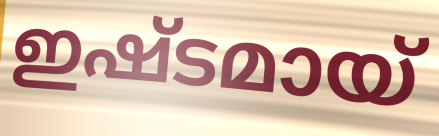
ഇഷ്ടമായ്